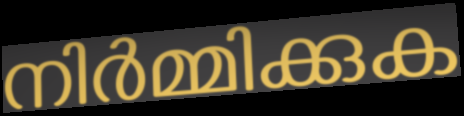
നിർമ്മിക്കുക